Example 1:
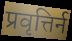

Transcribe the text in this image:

प्रवृत्तिर्न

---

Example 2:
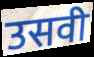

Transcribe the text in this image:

उसवी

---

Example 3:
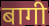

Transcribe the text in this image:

बागी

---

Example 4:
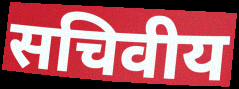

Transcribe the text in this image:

सचिवीय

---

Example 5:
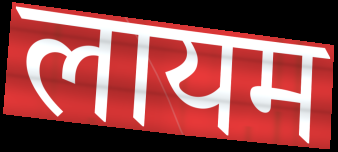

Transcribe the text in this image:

लायम